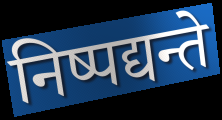
निष्पद्यन्ते